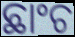
ଛାଂଚ